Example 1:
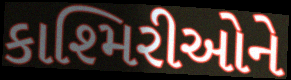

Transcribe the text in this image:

કાશ્મિરીઓને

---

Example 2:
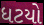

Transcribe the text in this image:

ધટયો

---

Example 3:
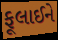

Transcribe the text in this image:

ફૂલાઈને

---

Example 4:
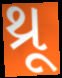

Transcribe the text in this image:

થ્રૂ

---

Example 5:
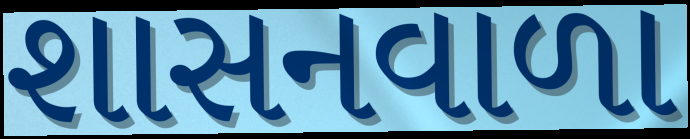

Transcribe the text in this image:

શાસનવાળા